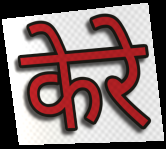
केरे